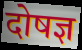
दोषज्ञ